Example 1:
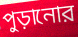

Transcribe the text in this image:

পুড়ানোর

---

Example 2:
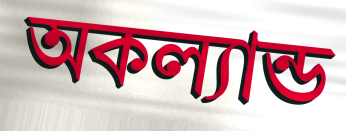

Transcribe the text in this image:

অকল্যান্ড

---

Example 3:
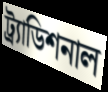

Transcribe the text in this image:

ট্র্যাডিশনাল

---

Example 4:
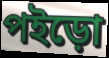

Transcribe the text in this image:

পইড়ো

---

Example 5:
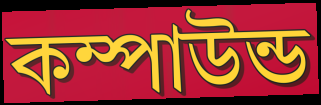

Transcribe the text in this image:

কম্পাউন্ড